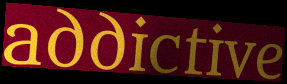
addictive